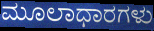
ಮೂಲಾಧಾರಗಳು